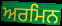
ਅਰਮਿਨ